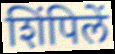
शिंपिलें